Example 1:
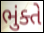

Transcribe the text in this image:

ભુંક્તે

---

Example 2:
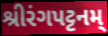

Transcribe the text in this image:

શ્રીરંગપટ્ટનમ્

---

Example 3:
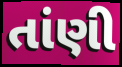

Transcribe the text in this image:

તાંણી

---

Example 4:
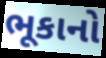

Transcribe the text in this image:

ભૂકાનો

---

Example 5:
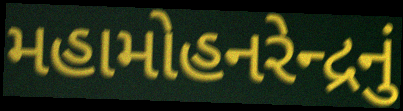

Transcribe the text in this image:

મહામોહનરેન્દ્રનું